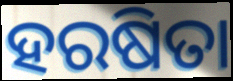
ହରଷିତା